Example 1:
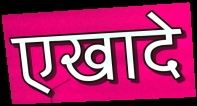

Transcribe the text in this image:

एखादे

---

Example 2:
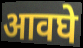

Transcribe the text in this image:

आवघे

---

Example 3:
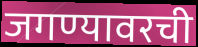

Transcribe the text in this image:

जगण्यावरची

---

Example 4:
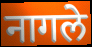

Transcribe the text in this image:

नागले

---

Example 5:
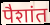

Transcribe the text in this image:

पैशांत